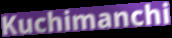
Kuchimanchi